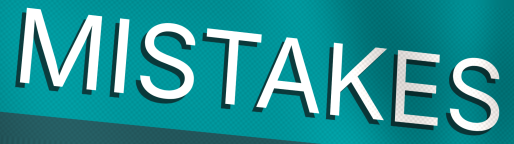
MISTAKES